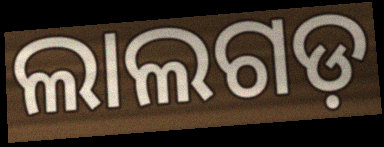
ଲାଲଗଡ଼